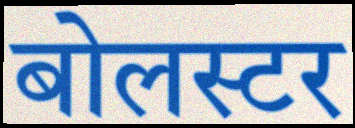
बोलस्टर